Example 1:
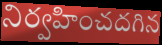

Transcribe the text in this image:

నిర్వహించదగిన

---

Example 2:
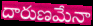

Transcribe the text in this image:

దారుణమేనా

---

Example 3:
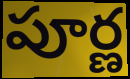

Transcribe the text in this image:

పూర్ణ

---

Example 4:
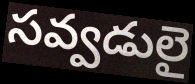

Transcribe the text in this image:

సవ్వడులై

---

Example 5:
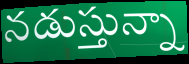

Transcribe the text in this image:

నడుస్తున్నా